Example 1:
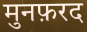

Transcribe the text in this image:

मुनफ़रद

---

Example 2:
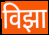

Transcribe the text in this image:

विझा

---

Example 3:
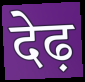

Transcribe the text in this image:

देढ़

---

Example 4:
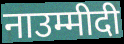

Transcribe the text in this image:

नाउम्मीदी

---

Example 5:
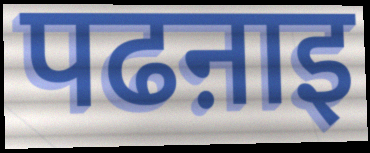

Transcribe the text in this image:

पढऩाइ